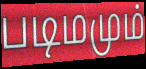
படிமமும்